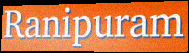
Ranipuram